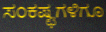
ಸಂಕಷ್ಟಗಳಿಗೂ